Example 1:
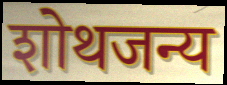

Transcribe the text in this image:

शोथजन्य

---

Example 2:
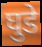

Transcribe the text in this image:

घुडे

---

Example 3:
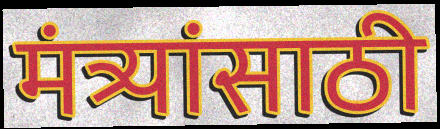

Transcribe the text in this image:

मंत्र्यांसाठी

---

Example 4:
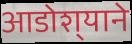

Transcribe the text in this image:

आडोश्याने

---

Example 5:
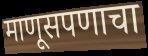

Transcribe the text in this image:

माणूसपणाचा